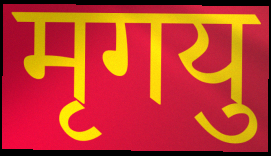
मृगयु